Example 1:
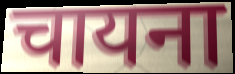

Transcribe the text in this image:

चायना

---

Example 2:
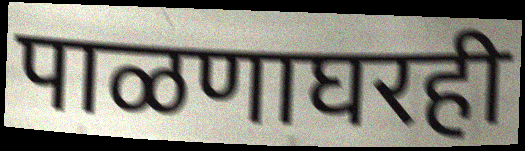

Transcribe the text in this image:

पाळणाघरही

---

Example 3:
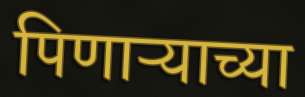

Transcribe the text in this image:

पिणाऱ्याच्या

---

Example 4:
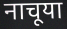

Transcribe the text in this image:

नाचूया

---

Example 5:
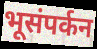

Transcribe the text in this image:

भूसंपर्कन